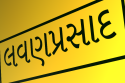
લવણપ્રસાદ